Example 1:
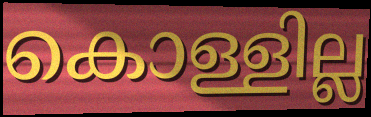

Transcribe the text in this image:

കൊള്ളില്ല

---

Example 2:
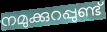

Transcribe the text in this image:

നമുക്കുറപ്പുണ്ട്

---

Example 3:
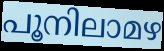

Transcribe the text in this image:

പൂനിലാമഴ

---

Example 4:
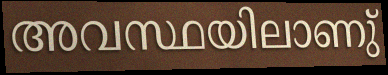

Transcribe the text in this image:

അവസ്ഥയിലാണു്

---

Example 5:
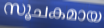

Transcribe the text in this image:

സൂചകമായ